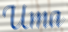
Uma